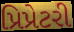
પ્રિપ્રેટરી